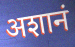
अशानं